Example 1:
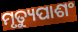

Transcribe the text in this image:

ମୃତ୍ୟୁପାଶଂ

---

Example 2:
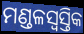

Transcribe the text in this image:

ମଣ୍ଡଳସ୍ୱସ୍ତିକ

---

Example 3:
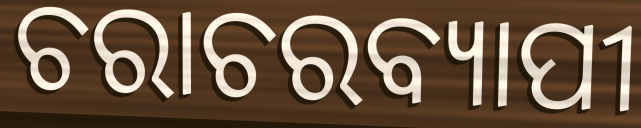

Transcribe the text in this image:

ଚରାଚରବ୍ୟାପୀ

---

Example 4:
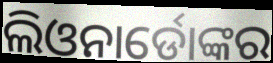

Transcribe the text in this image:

ଲିଓନାର୍ଡୋଙ୍କର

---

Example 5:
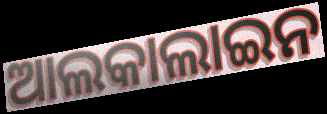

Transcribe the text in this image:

ଆଲକାଲାଇନ